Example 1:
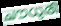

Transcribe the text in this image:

ചൗധുരി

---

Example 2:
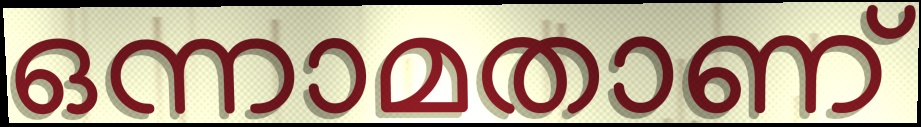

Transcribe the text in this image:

ഒന്നാമതാണ്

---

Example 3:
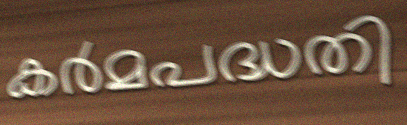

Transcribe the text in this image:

കർമപദ്ധതി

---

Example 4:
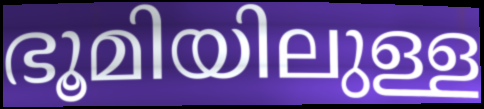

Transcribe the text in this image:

ഭൂമിയിലുള്ള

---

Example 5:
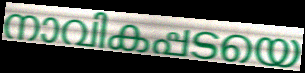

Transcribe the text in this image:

നാവികപ്പടയെ